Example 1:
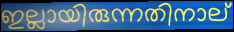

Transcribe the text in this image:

ഇല്ലായിരുന്നതിനാല്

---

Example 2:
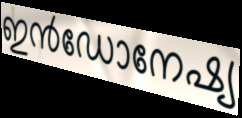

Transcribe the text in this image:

ഇൻഡോനേഷ്യ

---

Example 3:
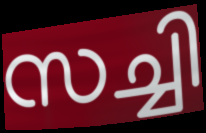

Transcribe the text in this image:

സച്ചി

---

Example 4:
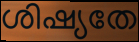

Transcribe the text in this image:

ശിഷ്യതേ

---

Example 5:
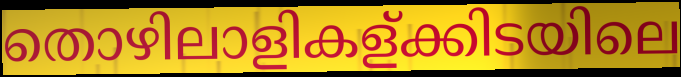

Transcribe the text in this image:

തൊഴിലാളികള്ക്കിടയിലെ